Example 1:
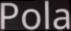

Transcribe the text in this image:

Pola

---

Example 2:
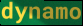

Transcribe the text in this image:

dynamo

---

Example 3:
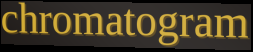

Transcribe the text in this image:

chromatogram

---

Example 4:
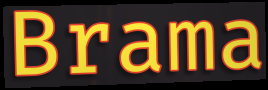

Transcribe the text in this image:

Brama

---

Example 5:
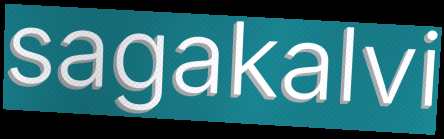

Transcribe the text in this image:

sagakalvi